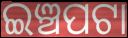
ଇଞ୍ଚପଟା